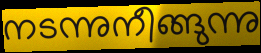
നടന്നുനീങ്ങുന്നു